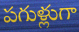
పగుళ్లుగా